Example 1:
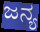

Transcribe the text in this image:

ಜನ್ಯ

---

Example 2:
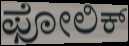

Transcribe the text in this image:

ಫೋಲಿಕ್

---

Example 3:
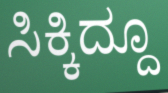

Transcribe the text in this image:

ಸಿಕ್ಕಿದ್ದೂ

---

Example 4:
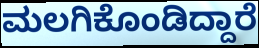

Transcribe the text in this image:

ಮಲಗಿಕೊಂಡಿದ್ದಾರೆ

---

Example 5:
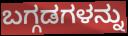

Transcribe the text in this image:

ಬಗ್ಗಡಗಳನ್ನು